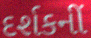
દર્શકનીં